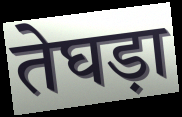
तेघड़ा